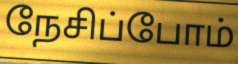
நேசிப்போம்